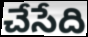
చేసేది